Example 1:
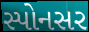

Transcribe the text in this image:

સ્પોનસર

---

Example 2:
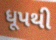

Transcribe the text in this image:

ધૂપથી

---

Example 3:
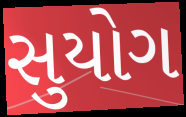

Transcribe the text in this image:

સુયોગ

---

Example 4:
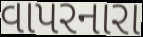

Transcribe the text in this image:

વાપરનારા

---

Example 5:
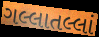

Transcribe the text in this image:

ગલ્લાતલ્લાં